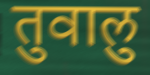
तुवालु